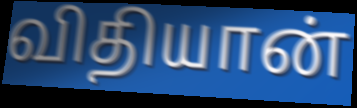
விதியான்